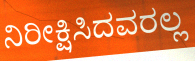
ನಿರೀಕ್ಷಿಸಿದವರಲ್ಲ